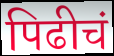
पिढीचं